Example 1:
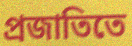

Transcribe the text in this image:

প্রজাতিতে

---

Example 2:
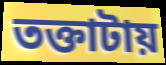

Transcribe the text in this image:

তক্তাটায়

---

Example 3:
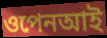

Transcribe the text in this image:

ওপেনআই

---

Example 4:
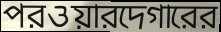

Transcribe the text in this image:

পরওয়ারদেগারের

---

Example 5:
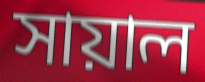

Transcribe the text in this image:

সায়াল